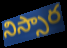
నిస్సార